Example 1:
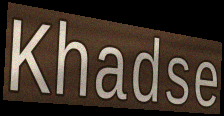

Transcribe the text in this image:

Khadse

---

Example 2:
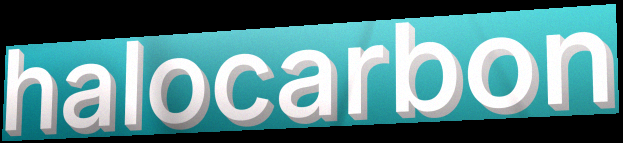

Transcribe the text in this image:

halocarbon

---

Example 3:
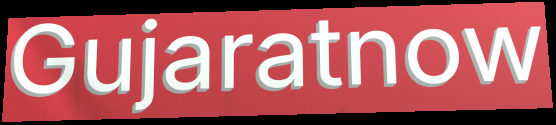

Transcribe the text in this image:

Gujaratnow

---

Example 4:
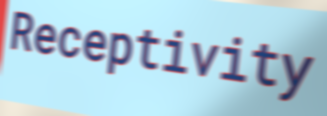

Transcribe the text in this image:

Receptivity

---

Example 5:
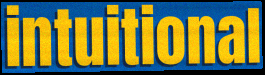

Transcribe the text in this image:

intuitional